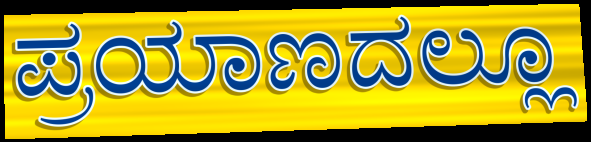
ಪ್ರಯಾಣದಲ್ಲೂ